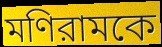
মণিরামকে